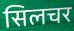
सिलचर